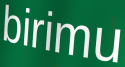
birimu